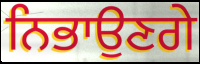
ਨਿਭਾਉਣਗੇ